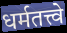
धर्मतत्त्वे